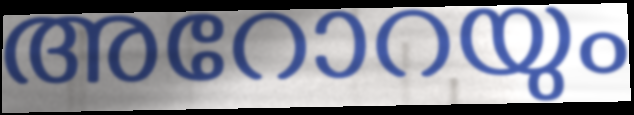
അറോറയും